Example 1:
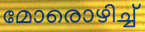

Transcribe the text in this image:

മോരൊഴിച്ച്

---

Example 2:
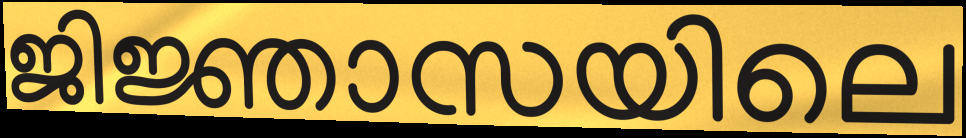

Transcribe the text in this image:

ജിജ്ഞാസയിലെ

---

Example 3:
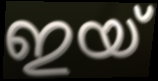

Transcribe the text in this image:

ഇയ്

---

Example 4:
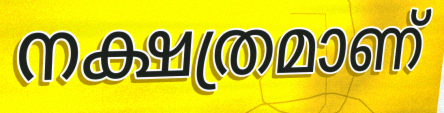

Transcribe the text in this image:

നക്ഷത്രമാണ്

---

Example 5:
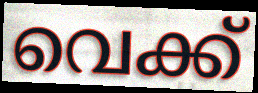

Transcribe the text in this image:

വെക്ക്